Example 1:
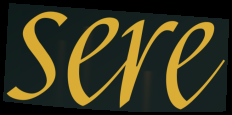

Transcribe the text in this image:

sere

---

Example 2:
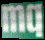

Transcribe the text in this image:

mq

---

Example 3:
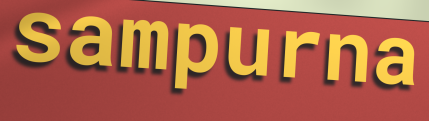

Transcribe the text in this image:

sampurna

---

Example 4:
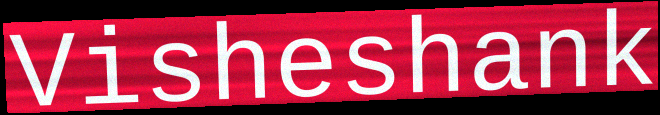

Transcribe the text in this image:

Visheshank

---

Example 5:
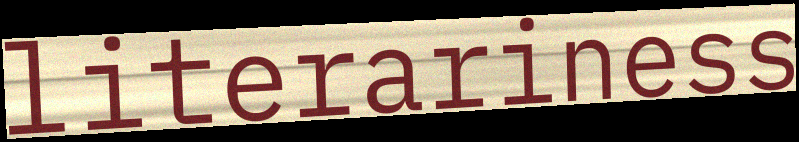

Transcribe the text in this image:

literariness